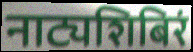
नाट्यशिबिरं